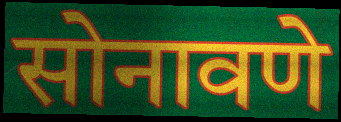
सोनावणे